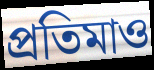
প্রতিমাও